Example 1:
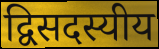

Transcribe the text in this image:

द्विसदस्यीय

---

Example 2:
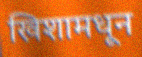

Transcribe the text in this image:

खिशामधून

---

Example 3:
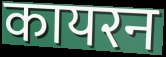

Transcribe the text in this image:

कायरन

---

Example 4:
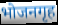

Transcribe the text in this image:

भोजनगृह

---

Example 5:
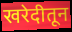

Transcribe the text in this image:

खरेदीतून